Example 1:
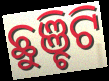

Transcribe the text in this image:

ଛୁଞ୍ଚିଟି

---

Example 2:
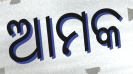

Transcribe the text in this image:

ଆମକ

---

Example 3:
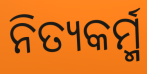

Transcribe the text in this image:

ନିତ୍ୟକର୍ମ୍ମ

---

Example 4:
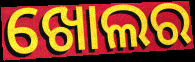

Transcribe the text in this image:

ଖୋଲର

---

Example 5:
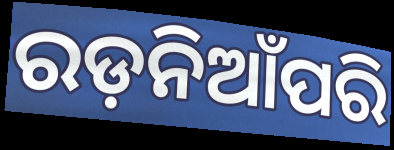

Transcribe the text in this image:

ରଡ଼ନିଆଁପରି